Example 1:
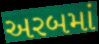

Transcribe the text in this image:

અરબમાં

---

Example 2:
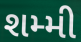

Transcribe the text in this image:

શમ્મી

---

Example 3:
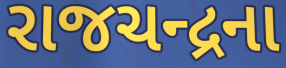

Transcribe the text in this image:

રાજચન્દ્રના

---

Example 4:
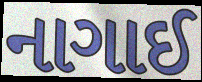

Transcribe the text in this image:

નાગાઈ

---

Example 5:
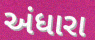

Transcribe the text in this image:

અંધારા